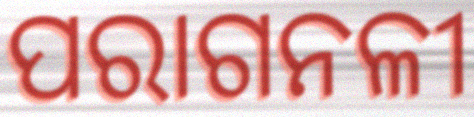
ପରାଗନଳୀ